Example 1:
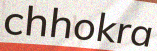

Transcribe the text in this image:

chhokra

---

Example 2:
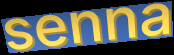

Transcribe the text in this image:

senna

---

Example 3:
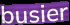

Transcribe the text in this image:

busier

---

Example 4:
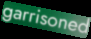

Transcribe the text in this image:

garrisoned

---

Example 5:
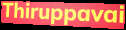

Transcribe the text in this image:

Thiruppavai